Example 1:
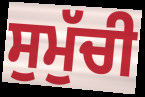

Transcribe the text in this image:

ਸੁਮੁੱਚੀ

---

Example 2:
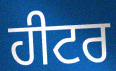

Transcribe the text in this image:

ਹੀਟਰ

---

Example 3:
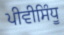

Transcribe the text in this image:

ਪੀਵੀਸਿੰਧੂ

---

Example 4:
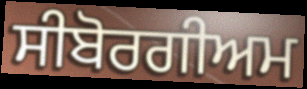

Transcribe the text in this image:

ਸੀਬੋਰਗੀਅਮ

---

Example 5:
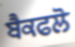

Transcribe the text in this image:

ਬੈਕਫਲੋ